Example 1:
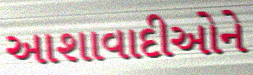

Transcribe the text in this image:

આશાવાદીઓને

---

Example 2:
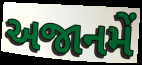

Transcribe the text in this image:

અજાનમેં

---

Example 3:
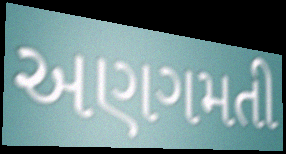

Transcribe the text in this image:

અણગમતી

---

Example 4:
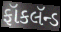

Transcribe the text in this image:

ફૉકલૅન્ડ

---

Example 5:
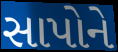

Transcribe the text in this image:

સાપોને